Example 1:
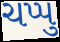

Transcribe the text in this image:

ચપ્પુ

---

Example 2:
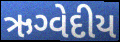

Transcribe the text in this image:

ઋગ્વેદીય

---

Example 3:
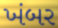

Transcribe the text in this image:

ખંબર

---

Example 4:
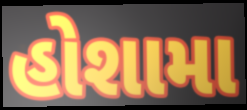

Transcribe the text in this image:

હોશામા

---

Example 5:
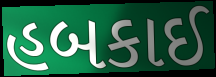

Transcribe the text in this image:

હબકાઈ